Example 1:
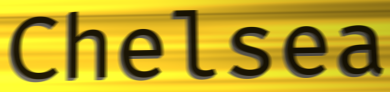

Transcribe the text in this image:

Chelsea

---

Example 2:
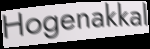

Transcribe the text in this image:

Hogenakkal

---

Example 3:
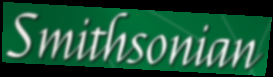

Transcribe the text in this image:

Smithsonian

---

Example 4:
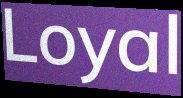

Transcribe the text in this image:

Loyal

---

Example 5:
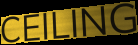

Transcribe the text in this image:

CEILING